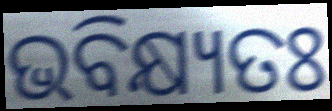
ଭବିକ୍ଷ୍ୟତଃ